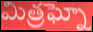
మిత్రఘ్నో